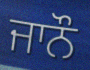
ਜਾਨੌ